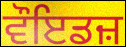
ਵੌਇਡਜ਼